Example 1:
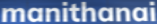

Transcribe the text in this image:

manithanai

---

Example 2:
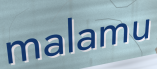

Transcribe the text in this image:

malamu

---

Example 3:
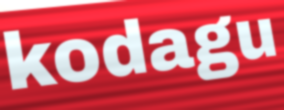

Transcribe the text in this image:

kodagu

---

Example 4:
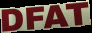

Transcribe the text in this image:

DFAT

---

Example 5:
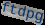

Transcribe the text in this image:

ftdpg